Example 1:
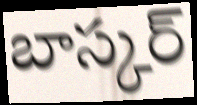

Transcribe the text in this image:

బాస్కర్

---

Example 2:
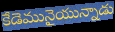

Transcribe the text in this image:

కేడెమునైయున్నాడు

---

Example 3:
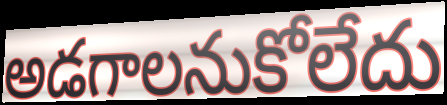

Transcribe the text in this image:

అడగాలనుకోలేదు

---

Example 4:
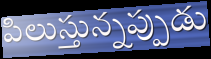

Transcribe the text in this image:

పిలుస్తున్నప్పుడు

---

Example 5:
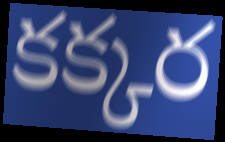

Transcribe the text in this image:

కక్కర